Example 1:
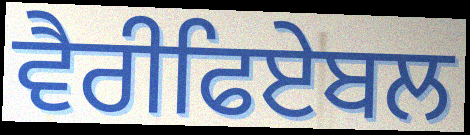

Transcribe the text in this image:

ਵੈਰੀਫਿਏਬਲ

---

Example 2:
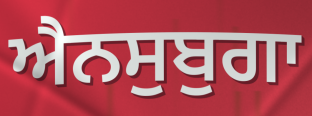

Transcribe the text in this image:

ਐਨਸੁਬੁਗਾ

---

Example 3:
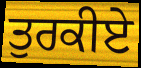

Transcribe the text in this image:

ਤੁਰਕੀਏ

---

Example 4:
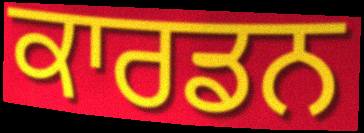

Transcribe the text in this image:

ਕਾਰਡਨ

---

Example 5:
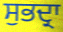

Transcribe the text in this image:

ਸੁਭਦ੍ਰਾ